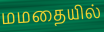
மமதையில்